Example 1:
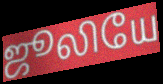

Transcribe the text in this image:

ஜூலியே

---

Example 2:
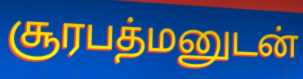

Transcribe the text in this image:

சூரபத்மனுடன்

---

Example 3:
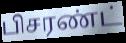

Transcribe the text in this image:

பிசரண்ட்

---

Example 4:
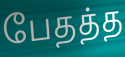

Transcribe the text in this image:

பேதத்த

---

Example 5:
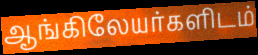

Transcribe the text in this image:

ஆங்கிலேயர்களிடம்